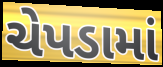
ચેપડામાં